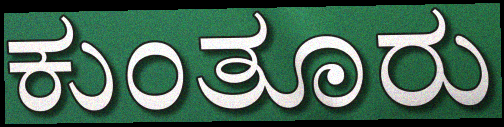
ಕುಂತೂರು